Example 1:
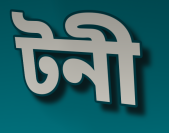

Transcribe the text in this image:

টনী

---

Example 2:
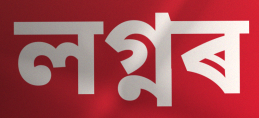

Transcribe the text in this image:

লগ্নৰ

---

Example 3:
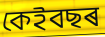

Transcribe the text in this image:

কেইবছৰ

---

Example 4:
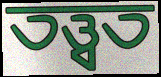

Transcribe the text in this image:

তত্ত্বত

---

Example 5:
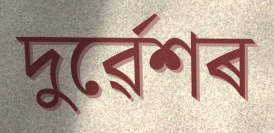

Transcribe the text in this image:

দুৰ্ৱেশৰ